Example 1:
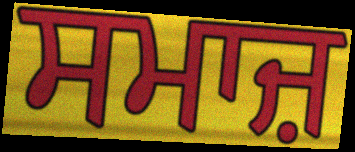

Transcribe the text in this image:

ਸਮਾਜ਼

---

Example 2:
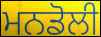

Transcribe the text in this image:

ਮਨਡੋਲੀ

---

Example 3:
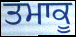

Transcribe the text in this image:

ਤਮਾਕੂ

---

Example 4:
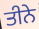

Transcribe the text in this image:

ਤੀਨੇ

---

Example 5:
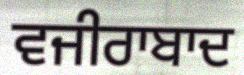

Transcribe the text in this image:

ਵਜੀਰਾਬਾਦ